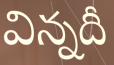
విన్నదీ